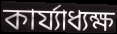
কার্য্যাধ্যক্ষ